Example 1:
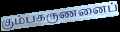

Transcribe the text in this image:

கும்பகருணனைப்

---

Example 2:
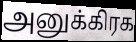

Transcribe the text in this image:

அனுக்கிரக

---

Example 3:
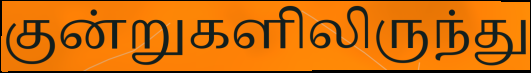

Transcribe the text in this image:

குன்றுகளிலிருந்து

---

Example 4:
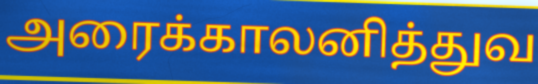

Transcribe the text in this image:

அரைக்காலனித்துவ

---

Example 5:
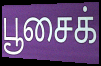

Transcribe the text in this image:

பூசைக்